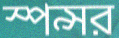
স্পন্সর